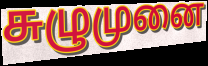
சுழுமுனை